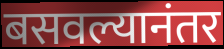
बसवल्यानंतर